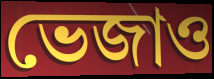
ভেজাও